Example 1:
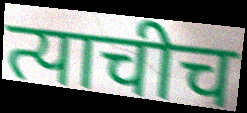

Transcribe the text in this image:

त्याचीच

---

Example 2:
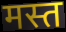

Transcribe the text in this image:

मस्त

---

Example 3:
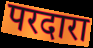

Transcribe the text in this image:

परदारा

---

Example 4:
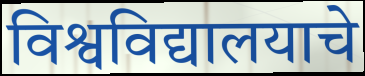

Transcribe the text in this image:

विश्वविद्यालयाचे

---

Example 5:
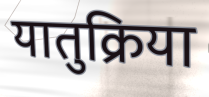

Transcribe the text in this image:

यातुक्रिया